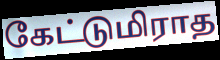
கேட்டுமிராத